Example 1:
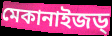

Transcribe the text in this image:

মেকানাইজড্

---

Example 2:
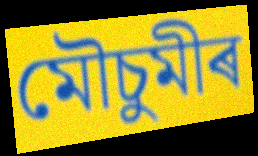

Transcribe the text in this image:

মৌচুমীৰ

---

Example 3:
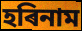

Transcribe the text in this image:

হৰিনাম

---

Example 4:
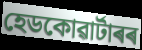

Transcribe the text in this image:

হেডকোৱাৰ্টাৰৰ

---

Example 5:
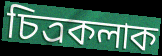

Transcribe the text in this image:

চিত্ৰকলাক